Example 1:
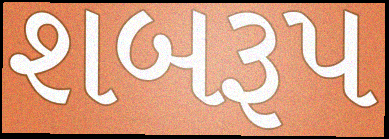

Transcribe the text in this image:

શબરૂપ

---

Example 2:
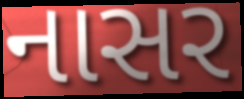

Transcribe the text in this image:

નાસર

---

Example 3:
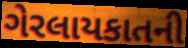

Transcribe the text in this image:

ગેરલાયકાતની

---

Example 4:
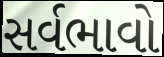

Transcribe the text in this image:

સર્વભાવો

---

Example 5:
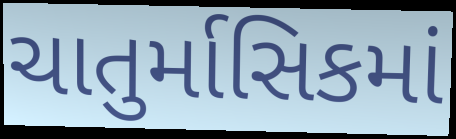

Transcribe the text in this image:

ચાતુર્માસિકમાં